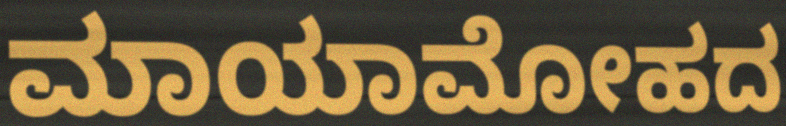
ಮಾಯಾಮೋಹದ